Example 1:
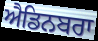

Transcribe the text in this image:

ਐਡਿਨਬਰਾ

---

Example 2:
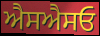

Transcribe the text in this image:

ਐਸਐਸਓ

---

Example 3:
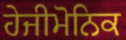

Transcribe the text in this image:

ਹੇਜੀਮੋਨਿਕ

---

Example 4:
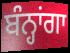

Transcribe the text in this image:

ਬੰਨ੍ਹਾਂਗਾ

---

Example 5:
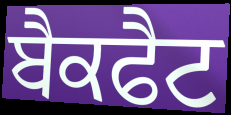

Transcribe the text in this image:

ਬੈਕਫੈਟ